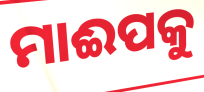
ମାଈପକୁ